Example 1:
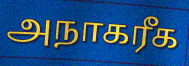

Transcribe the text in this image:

அநாகரீக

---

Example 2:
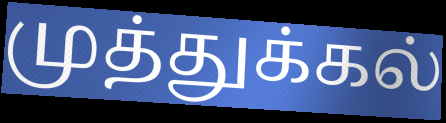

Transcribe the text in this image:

முத்துக்கல்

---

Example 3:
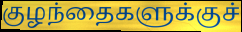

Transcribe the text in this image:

குழந்தைகளுக்குச்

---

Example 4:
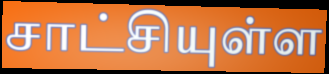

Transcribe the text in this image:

சாட்சியுள்ள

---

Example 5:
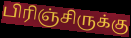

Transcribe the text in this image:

பிரிஞ்சிருக்கு